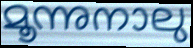
മൂന്നുനാലു